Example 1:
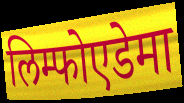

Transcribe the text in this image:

लिम्फोएडेमा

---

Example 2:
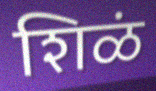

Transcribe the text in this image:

शिळं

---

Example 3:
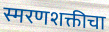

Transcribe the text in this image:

स्मरणशक्तीचा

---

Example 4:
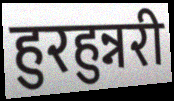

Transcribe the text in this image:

हुरहुन्नरी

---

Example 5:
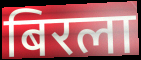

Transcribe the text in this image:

बिरला